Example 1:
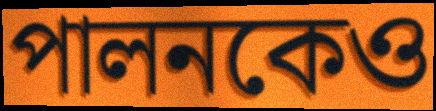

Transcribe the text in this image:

পালনকেও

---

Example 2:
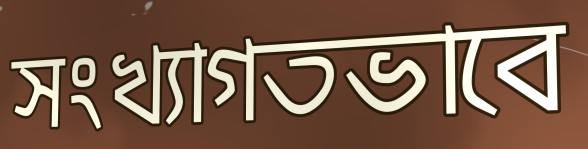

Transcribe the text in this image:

সংখ্যাগতভাবে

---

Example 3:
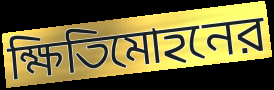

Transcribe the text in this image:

ক্ষিতিমোহনের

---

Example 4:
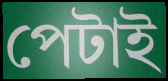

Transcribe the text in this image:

পেটাই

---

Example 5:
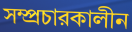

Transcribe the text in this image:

সম্প্রচারকালীন